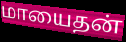
மாயைதன்